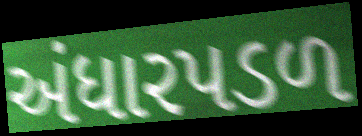
અંધારપડળ